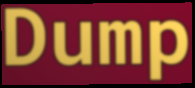
Dump